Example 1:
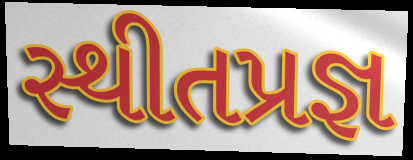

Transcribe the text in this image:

સ્થીતપ્રજ્ઞ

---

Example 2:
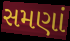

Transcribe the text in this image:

સમણાં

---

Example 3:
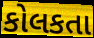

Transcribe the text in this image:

કોલકતા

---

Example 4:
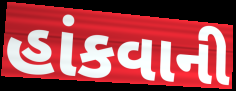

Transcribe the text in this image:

હાંકવાની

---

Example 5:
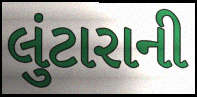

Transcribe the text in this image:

લુંટારાની